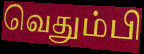
வெதும்பி